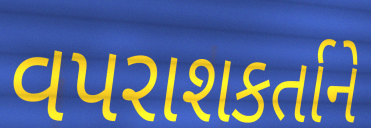
વપરાશકર્તાને